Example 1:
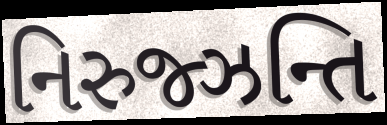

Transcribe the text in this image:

નિરુજ્ઝન્તિ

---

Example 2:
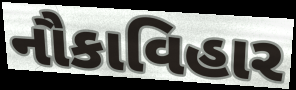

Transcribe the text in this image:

નૌકાવિહાર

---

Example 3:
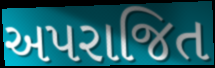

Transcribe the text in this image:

અપરાજિત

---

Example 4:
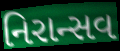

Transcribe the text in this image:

નિરાન્સવ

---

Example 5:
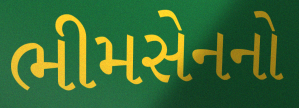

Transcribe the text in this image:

ભીમસેનનો